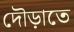
দৌড়াতে